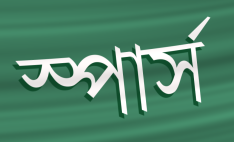
স্পার্স